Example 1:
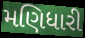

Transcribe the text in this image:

મણિધારી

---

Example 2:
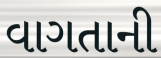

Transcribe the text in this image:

વાગતાની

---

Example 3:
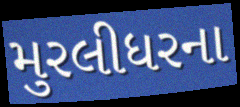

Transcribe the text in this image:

મુરલીધરના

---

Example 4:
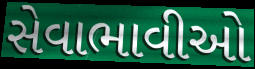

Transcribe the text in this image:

સેવાભાવીઓ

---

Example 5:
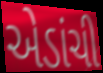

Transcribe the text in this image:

એડાંચી